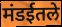
मंडईतले